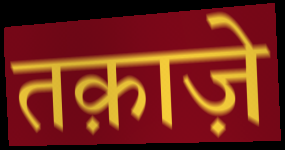
तक़ाज़े